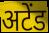
अटेंड